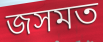
জসমত